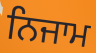
ਨਿਜਾਮ